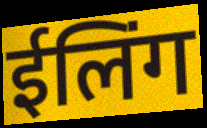
ईलिंग